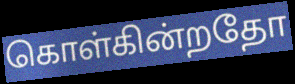
கொள்கின்றதோ